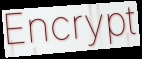
Encrypt